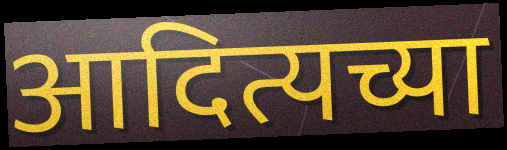
आदित्यच्या